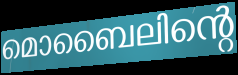
മൊബൈലിന്റെ